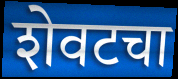
शेवटचा